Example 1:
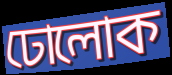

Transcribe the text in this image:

ঢোলোক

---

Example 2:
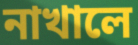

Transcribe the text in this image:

নাখালে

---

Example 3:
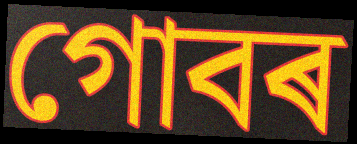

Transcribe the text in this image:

গোবৰ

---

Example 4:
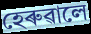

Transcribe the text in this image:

হেৰুৱালে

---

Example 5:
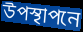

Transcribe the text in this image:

উপস্থাপনে